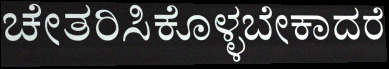
ಚೇತರಿಸಿಕೊಳ್ಳಬೇಕಾದರೆ